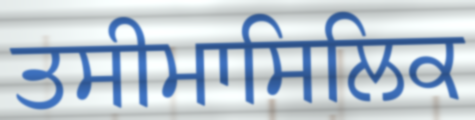
ਤਸੀਮਾਸਿਲਿਕ